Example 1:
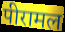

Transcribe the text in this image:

पीरामल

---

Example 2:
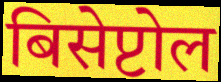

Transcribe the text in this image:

बिसेप्टोल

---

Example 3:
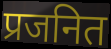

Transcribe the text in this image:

प्रजनित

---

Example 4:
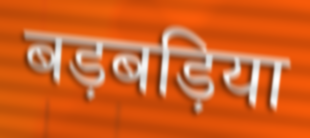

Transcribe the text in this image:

बड़बड़िया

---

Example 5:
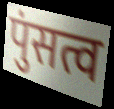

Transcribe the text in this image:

पुंसत्व